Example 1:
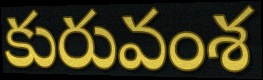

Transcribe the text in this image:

కురువంశ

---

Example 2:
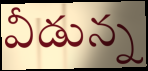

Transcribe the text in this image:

వీడున్న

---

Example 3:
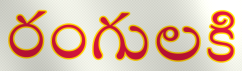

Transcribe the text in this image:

రంగులకి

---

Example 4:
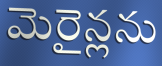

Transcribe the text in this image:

మెరైన్లను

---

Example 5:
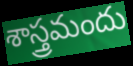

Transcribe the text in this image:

శాస్త్రమందు